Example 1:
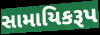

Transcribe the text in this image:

સામાયિકરૂપ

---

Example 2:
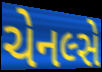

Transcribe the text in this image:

ચેનલ્સે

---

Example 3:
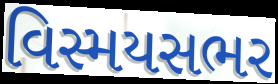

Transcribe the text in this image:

વિસ્મયસભર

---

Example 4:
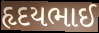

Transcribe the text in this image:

હૃદયભાઈ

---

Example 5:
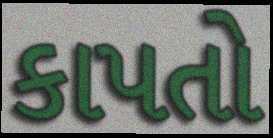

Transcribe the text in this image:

કાપતો